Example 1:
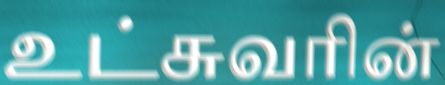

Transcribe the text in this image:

உட்சுவரின்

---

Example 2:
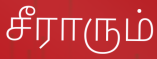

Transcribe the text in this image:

சீராரும்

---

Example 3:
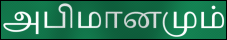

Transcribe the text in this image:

அபிமானமும்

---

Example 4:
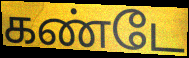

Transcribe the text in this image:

கண்டே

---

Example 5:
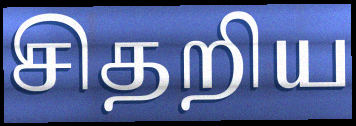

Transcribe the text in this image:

சிதறிய